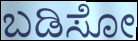
ಬಡಿಸೋ